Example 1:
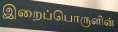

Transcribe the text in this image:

இறைப்பொருளின்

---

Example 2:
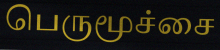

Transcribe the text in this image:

பெருமூச்சை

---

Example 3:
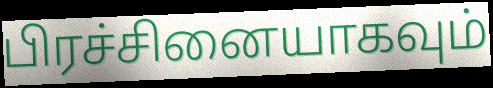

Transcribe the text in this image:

பிரச்சினையாகவும்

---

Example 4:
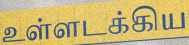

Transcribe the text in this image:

உள்ளடக்கிய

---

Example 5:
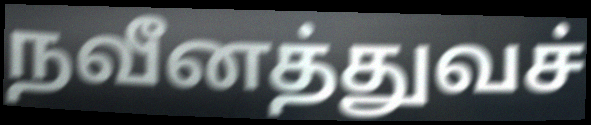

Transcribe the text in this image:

நவீனத்துவச்